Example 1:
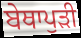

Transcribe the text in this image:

ਬੇਥਾਪੁੜੀ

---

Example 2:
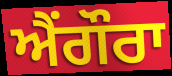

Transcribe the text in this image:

ਐਂਗੌਰਾ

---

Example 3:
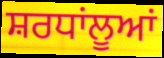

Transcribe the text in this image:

ਸ਼ਰਧਾਂਲੂਆਂ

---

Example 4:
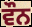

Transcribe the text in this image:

ਵੌਨ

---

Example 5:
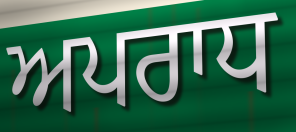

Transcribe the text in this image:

ਅਪਰਾਧ